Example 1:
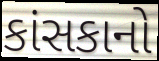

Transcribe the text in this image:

કાંસકાનો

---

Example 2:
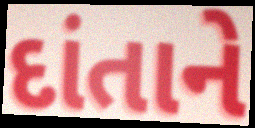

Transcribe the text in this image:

દાંતાને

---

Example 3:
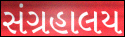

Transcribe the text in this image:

સંગ્રહાલય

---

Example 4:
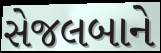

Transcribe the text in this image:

સેજલબાને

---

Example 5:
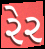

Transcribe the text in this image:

રેર